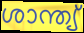
ശാന്ത്യ്